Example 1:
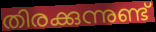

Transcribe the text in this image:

തിരക്കുന്നുണ്ട്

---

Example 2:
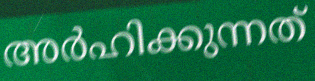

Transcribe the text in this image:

അർഹിക്കുന്നത്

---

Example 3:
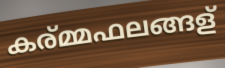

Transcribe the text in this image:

കര്മ്മഫലങ്ങള്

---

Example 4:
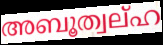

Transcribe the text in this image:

അബൂത്വല്ഹ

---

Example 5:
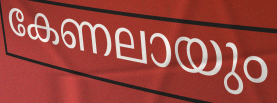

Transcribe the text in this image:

കേണലായും